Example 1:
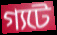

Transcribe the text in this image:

গ্যটে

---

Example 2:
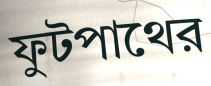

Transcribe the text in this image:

ফুটপাথের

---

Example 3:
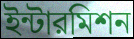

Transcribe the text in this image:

ইন্টারমিশন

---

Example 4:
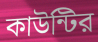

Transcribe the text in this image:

কাউন্টির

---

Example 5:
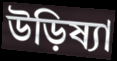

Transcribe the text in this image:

উড়িষ্যা